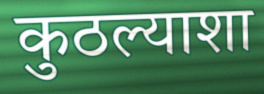
कुठल्याशा